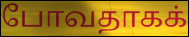
போவதாகக்